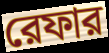
রেফার